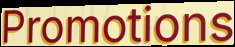
Promotions